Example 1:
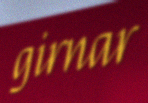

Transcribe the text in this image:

girnar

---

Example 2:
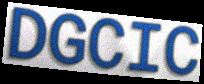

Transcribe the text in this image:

DGCIC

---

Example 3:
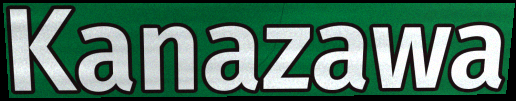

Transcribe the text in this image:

Kanazawa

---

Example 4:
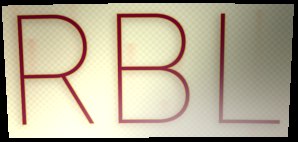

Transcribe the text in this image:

RBL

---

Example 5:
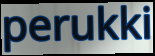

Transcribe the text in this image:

perukki